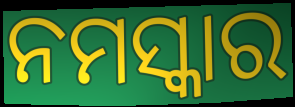
ନମସ୍କାର